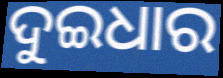
ଦୁଇଧାର